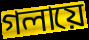
গলায়ে